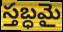
స్తబ్ధమై